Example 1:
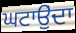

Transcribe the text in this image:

ਘਟਾਉੁਂਦਾ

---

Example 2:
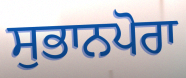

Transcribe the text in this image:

ਸੁਭਾਨਪੋਰਾ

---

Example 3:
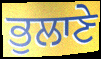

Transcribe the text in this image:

ਭੁਲਾਣੇ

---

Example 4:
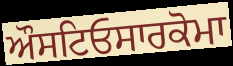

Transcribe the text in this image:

ਔਸਟਿਓਸਾਰਕੋਮਾ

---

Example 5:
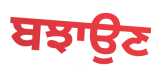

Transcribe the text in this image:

ਬਝਾਉਣ